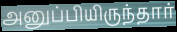
அனுப்பியிருந்தார்